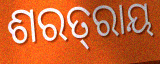
ଶରତ୍‌ରାୟ